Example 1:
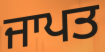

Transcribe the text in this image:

ਜਾਪਤ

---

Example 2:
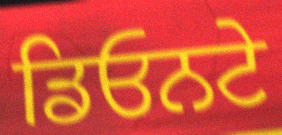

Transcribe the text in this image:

ਡਿਓਨਟੇ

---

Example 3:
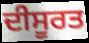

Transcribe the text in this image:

ਦੀਸੂਰਤ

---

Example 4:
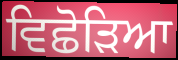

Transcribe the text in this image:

ਵਿਛੋੜਿਆ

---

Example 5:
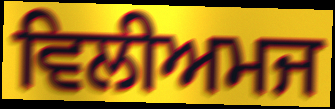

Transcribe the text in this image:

ਵਿਲੀਅਮਜ